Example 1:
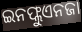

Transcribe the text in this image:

ଇନଫ୍ଲୁଏନଜା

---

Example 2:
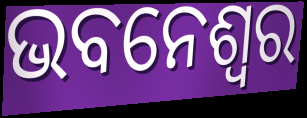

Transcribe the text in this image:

ଭବନେଶ୍ୱର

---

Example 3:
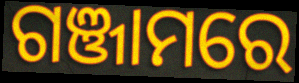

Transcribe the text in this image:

ଗଞ୍ଜାମରେ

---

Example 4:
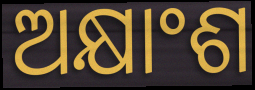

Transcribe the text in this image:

ଅକ୍ଷାଂଶ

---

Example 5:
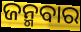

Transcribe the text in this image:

ଜନ୍ମବାର